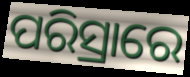
ପରିସ୍ରାରେ